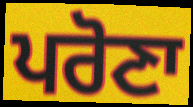
ਪਰੋਣਾ